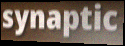
synaptic